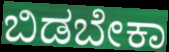
ಬಿಡಬೇಕಾ